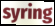
syring